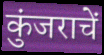
कुंजराचें